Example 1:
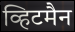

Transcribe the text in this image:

व्हिटमैन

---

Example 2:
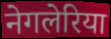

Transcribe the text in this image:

नेगलेरिया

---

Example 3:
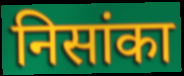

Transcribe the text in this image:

निसांका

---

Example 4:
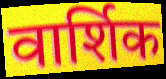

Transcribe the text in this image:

वार्शिक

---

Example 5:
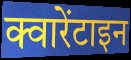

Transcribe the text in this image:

क्वारेंटाइन